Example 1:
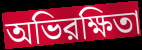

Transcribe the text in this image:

অভিরক্ষিতা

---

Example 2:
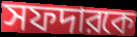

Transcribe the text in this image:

সফদারকে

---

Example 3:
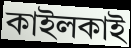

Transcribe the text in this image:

কাইলকাই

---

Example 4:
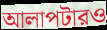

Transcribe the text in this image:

আলাপটারও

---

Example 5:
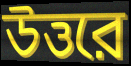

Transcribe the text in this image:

উত্তরে